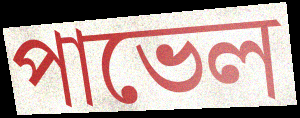
পাভেল